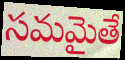
సమమైతే